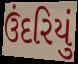
ઉંદરિયું